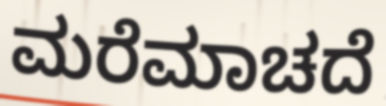
ಮರೆಮಾಚದೆ